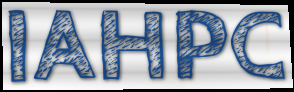
IAHPC